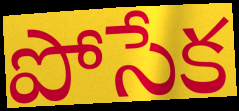
పోసేక